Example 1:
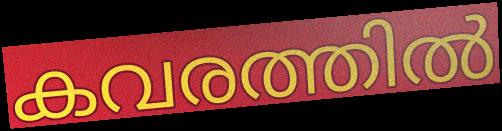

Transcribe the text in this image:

കവരത്തിൽ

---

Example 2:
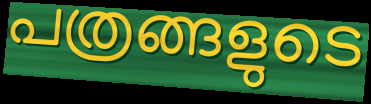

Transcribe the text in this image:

പത്രങ്ങളുടെ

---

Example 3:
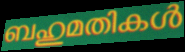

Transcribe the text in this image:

ബഹുമതികൾ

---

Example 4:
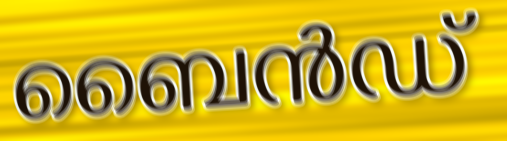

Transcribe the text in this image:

ബൈൻഡ്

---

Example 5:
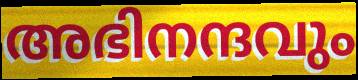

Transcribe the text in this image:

അഭിനന്ദവും